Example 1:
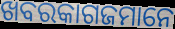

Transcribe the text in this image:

ଖବରକାଗଜମାନେ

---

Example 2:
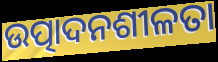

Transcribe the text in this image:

ଉତ୍ପାଦନଶୀଳତା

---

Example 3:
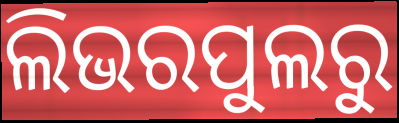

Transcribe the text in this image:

ଲିଭରପୁଲରୁ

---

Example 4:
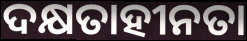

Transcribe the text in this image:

ଦକ୍ଷତାହୀନତା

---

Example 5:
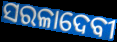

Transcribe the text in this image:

ସରଳାଦେବୀ